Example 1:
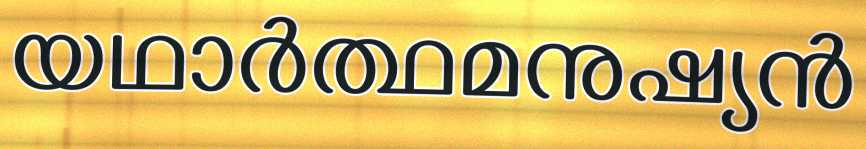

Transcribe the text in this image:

യഥാർത്ഥമനുഷ്യൻ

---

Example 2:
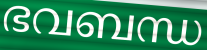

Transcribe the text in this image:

ഭവബന്ധ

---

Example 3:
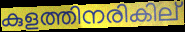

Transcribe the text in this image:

കുളത്തിനരികില്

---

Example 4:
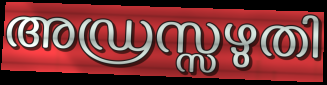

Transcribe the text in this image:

അഡ്രസ്സഴുതി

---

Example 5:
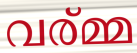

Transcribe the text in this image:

വര്മ്മ